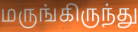
மருங்கிருந்து